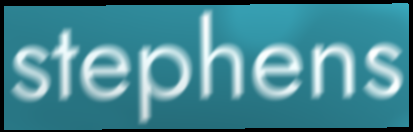
stephens